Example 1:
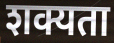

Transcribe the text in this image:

शक्यता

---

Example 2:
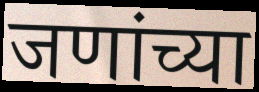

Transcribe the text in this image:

जणांच्या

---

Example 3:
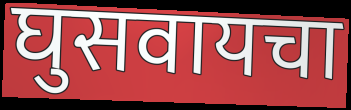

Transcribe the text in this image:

घुसवायचा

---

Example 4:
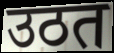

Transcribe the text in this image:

उठत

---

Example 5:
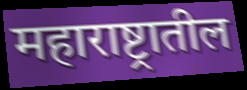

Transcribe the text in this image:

महाराष्ट्रातील